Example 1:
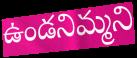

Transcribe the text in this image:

ఉండనిమ్మని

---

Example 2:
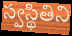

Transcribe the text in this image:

స్వస్థితిని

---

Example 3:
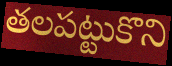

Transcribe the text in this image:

తలపట్టుకొని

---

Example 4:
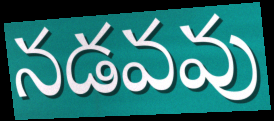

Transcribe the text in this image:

నడవవు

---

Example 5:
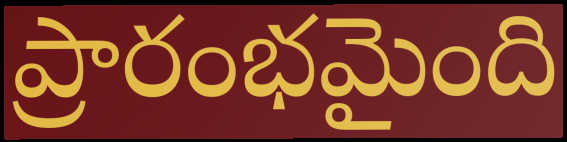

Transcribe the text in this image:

ప్రారంభమైంది